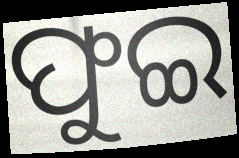
ଫୁଇ